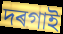
দৰগাই